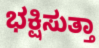
ಭಕ್ಷಿಸುತ್ತಾ